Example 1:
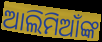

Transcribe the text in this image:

ଆଲିମିଆଁଙ୍କ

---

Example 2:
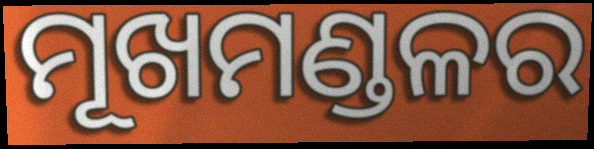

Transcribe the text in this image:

ମୂଖମଣ୍ଡଳର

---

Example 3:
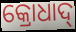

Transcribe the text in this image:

କ୍ରୋଧାଦ୍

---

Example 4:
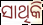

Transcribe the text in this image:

ସାଥିକି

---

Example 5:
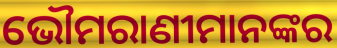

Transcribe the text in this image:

ଭୌମରାଣୀମାନଙ୍କର